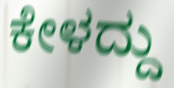
ಕೇಳದ್ದು